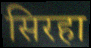
सिरहा